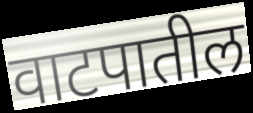
वाटपातील